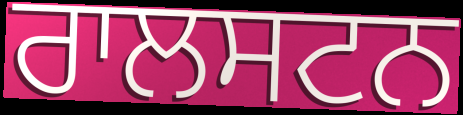
ਰਾਲਸਟਨ